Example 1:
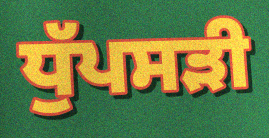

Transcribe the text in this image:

ਧੁੱਪਸੜੀ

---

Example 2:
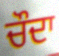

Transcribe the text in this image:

ਚੌਦਾ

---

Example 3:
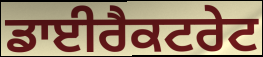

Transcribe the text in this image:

ਡਾਈਰੈਕਟਰੇਟ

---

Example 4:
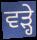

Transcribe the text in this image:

ਵੜ੍ਹੇ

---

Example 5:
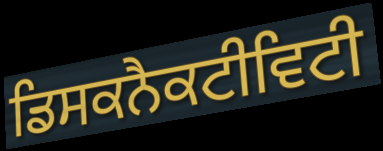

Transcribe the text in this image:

ਡਿਸਕਨੈਕਟੀਵਿਟੀ